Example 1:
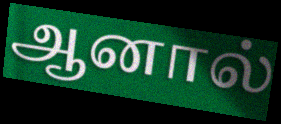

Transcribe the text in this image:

ஆனால்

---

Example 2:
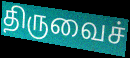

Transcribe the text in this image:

திருவைச்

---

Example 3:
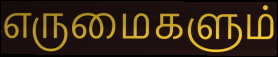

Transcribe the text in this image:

எருமைகளும்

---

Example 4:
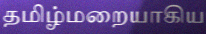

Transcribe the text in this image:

தமிழ்மறையாகிய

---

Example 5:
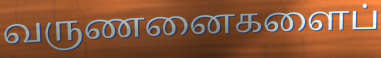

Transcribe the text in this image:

வருணனைகளைப்